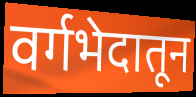
वर्गभेदातून